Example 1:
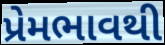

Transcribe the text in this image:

પ્રેમભાવથી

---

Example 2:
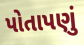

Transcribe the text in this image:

પોતાપણું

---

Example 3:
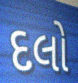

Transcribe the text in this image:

દલો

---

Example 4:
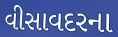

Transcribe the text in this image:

વીસાવદરના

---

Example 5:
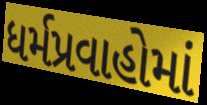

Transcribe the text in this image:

ધર્મપ્રવાહોમાં